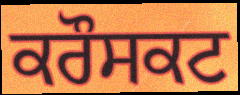
ਕਰੌਸਕਟ